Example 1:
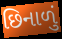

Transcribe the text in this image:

છિનાળું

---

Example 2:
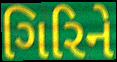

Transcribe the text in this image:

ગિરિને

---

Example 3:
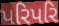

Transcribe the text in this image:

પરિપરિ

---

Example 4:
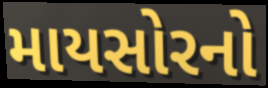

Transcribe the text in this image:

માયસોરનો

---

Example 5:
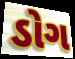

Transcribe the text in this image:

ડોગ